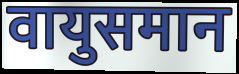
वायुसमान